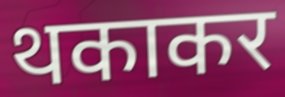
थकाकर